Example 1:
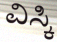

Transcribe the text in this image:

ವಿಸ್ಕಿ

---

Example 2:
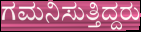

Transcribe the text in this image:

ಗಮನಿಸುತ್ತಿದ್ದರು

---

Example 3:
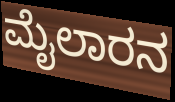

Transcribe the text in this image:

ಮೈಲಾರನ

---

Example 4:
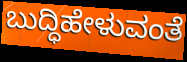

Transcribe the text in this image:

ಬುದ್ಧಿಹೇಳುವಂತೆ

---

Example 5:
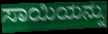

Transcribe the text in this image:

ಸಾಯಿಯನ್ನು